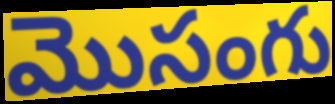
మొసంగు